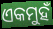
ଏକମୁହଁ